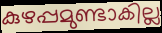
കുഴപ്പമുണ്ടാകില്ല